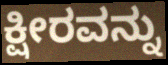
ಕ್ಷೀರವನ್ನು